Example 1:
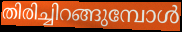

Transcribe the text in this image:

തിരിച്ചിറങ്ങുമ്പോൾ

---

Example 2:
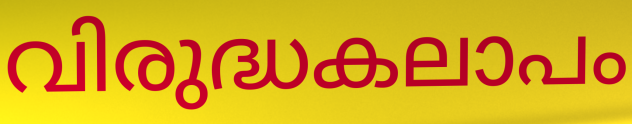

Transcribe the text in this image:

വിരുദ്ധകലാപം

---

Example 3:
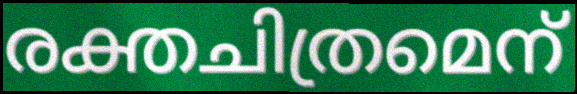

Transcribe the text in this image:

രക്തചിത്രമെന്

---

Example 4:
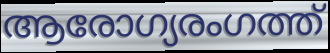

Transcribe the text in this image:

ആരോഗ്യരംഗത്ത്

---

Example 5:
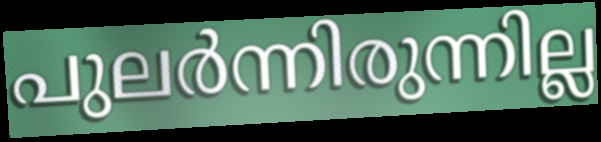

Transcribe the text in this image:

പുലർന്നിരുന്നില്ല